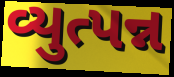
વ્યુત્પન્ન